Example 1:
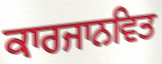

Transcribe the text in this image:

ਕਾਰਜਾਨਵਿਤ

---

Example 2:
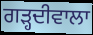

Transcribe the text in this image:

ਗਡ਼੍ਹਦੀਵਾਲਾ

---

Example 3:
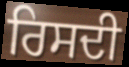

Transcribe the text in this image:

ਰਿਸਦੀ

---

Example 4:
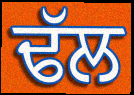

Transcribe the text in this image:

ਢੱਲ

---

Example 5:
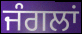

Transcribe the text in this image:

ਜੰਗਲਾਂ